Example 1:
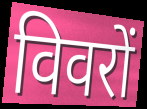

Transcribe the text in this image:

विवरों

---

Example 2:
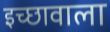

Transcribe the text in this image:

इच्छावाला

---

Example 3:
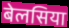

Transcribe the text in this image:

बेलसिया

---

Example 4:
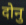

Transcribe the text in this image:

दोनु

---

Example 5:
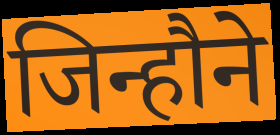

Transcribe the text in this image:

जिन्हौने